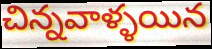
చిన్నవాళ్ళయిన